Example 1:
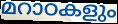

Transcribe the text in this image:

മറാഠകളും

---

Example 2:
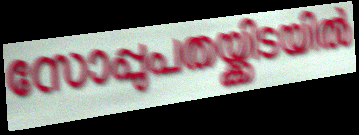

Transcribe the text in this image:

സോപ്പുപതയ്ക്കിടയിൽ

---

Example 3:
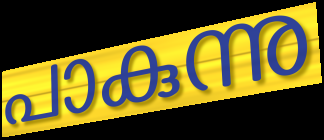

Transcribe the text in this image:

പാകുന്നു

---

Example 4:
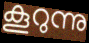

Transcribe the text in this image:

കൂറുന്നു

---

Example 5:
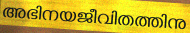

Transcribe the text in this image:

അഭിനയജീവിതത്തിനു